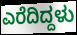
ಎರೆದಿದ್ದಳು